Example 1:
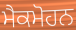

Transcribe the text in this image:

ਮੈਕਮੋਹਨ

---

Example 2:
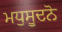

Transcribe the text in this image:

ਮਧੁਸੂਦਨੋ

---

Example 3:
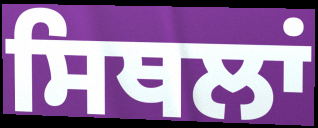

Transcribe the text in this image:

ਸਿਥਲਾਂ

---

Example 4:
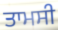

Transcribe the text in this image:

ਤਾਮਸੀ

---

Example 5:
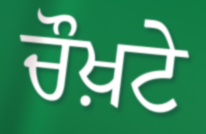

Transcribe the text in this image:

ਚੌਖ਼ਟੇ